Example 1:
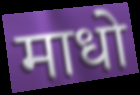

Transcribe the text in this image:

माधो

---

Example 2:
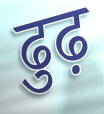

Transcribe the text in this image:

ढुढ़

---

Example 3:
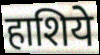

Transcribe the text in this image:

हाशिये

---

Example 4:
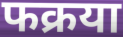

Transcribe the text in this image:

फक्रया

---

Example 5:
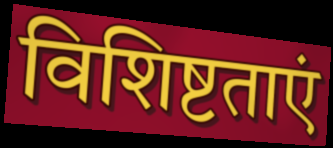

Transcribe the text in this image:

विशिष्टताएं